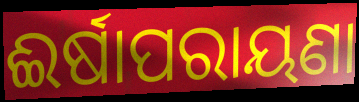
ଈର୍ଷାପରାୟଣା